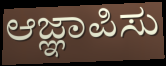
ಆಜ್ಞಾಪಿಸು